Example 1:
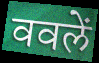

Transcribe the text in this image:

ववलें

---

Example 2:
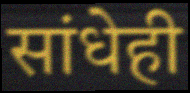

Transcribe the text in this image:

सांधेही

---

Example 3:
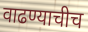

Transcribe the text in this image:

वाढण्याचीच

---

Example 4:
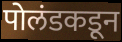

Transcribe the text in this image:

पोलंडकडून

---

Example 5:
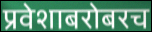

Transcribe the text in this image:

प्रवेशाबरोबरच